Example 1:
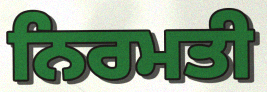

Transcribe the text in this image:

ਨਿਰਮਤੀ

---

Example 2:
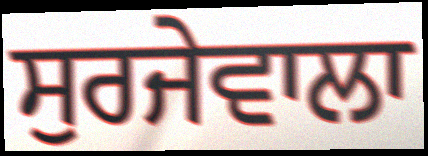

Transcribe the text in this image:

ਸੁਰਜੇਵਾਲਾ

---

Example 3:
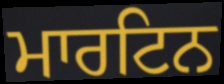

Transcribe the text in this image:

ਮਾਰਟਿਨ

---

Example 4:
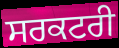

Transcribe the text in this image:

ਸਰਕਟਰੀ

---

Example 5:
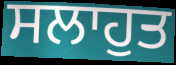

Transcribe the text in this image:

ਸਲਾਹੁਤ